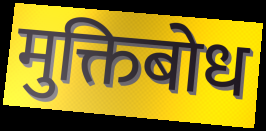
मुक्तिबोध